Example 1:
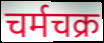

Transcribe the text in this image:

चर्मचक्र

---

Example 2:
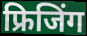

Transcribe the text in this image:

फ्रिजिंग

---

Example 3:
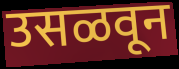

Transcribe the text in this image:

उसळवून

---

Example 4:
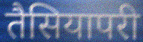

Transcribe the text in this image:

तैसियापरी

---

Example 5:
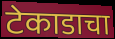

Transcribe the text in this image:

टेकाडाचा